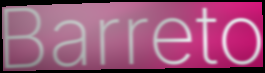
Barreto